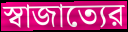
স্বাজাত্যের